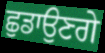
ਛੁਡਾਉਣਗੇ